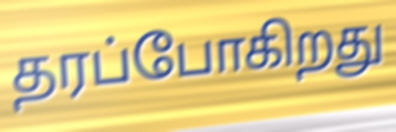
தரப்போகிறது